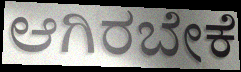
ಆಗಿರಬೇಕೆ